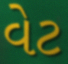
વેટ